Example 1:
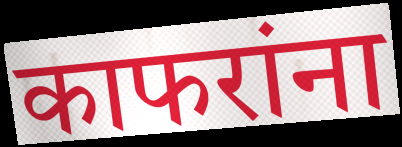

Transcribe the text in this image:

काफरांना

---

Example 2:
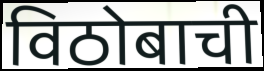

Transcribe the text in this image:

विठोबाची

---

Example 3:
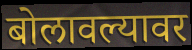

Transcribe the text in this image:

बोलावल्यावर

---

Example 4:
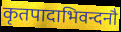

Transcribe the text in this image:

कृतपादाभिवन्दनौ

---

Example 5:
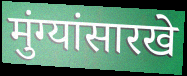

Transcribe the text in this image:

मुंग्यांसारखे